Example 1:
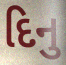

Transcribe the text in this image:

દિનુ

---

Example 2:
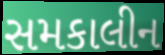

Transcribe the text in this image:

સમકાલીન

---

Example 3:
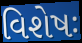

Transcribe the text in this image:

વિશેષઃ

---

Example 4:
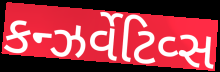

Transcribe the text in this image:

કન્ઝર્વેટિવ્સ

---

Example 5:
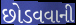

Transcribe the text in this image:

છોડવવાની